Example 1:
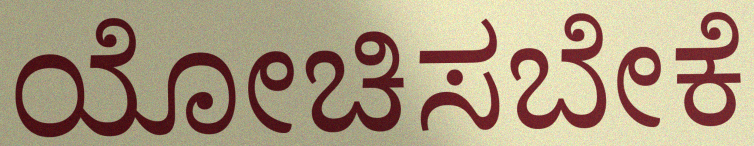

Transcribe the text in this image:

ಯೋಚಿಸಬೇಕೆ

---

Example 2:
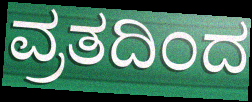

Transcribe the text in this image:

ವ್ರತದಿಂದ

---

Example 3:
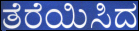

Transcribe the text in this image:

ತೆರೆಯಿಸಿದ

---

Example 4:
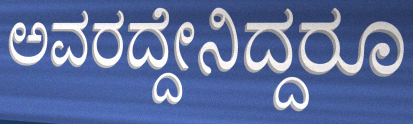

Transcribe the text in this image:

ಅವರದ್ದೇನಿದ್ದರೂ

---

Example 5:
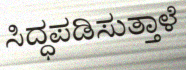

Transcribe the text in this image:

ಸಿದ್ಧಪಡಿಸುತ್ತಾಳೆ